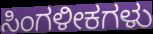
ಸಿಂಗಳೀಕಗಳು